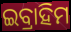
ଇବ୍ରାହିମ